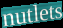
nutlets